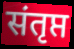
संतृप्त